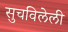
सुचविलेली